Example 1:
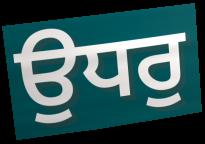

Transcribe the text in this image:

ਉਧਰੁ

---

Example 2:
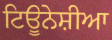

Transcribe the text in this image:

ਟਿਊਨੇਸ਼ੀਆ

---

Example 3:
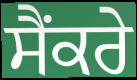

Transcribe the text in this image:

ਸੈਂਕਰੇ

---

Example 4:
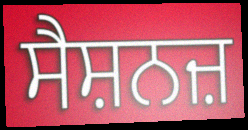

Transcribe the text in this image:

ਸੈਸ਼ਨਜ਼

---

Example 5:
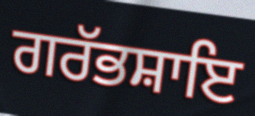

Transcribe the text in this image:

ਗਰੱਭਸ਼ਾਇ